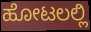
ಹೋಟಲಲ್ಲಿ